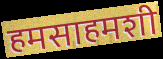
हमसाहमशी